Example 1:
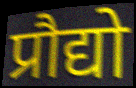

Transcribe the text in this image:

प्रौद्यो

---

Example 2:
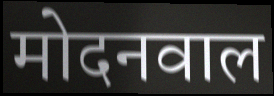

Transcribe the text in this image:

मोदनवाल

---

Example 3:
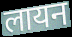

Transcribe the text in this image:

लायन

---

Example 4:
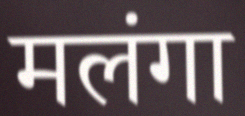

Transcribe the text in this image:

मलंगा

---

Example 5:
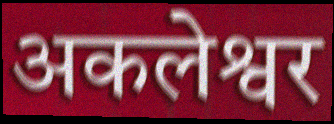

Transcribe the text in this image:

अकलेश्वर